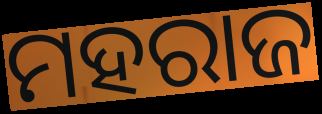
ମହରାଜ